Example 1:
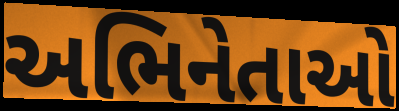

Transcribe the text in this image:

અભિનેતાઓ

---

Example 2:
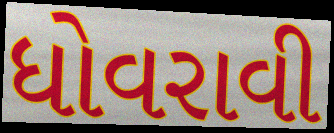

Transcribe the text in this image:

ધોવરાવી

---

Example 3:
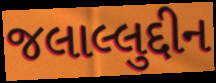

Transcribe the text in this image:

જલાલ્લુદ્દીન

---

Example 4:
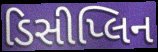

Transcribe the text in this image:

ડિસીપ્લિન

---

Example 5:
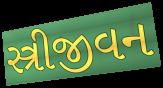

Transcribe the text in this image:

સ્ત્રીજીવન